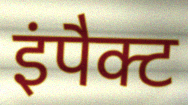
इंपैक्ट